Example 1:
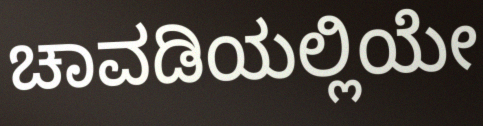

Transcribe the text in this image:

ಚಾವಡಿಯಲ್ಲಿಯೇ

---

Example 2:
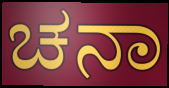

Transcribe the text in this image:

ಚನಾ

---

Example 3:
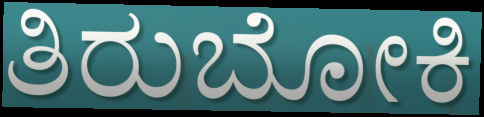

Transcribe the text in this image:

ತಿರುಬೋಕಿ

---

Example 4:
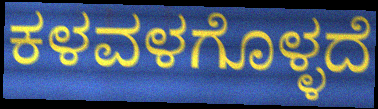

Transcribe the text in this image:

ಕಳವಳಗೊಳ್ಳದೆ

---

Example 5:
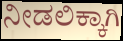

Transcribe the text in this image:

ನೀಡಲಿಕ್ಕಾಗಿ